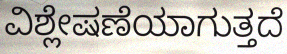
ವಿಶ್ಲೇಷಣೆಯಾಗುತ್ತದೆ